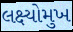
લક્ષ્યોમુખ